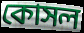
কোসল